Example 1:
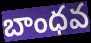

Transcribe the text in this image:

బాంధవ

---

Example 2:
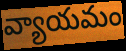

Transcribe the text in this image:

వ్యాయమం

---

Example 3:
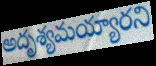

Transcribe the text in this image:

అదృశ్యమయ్యారని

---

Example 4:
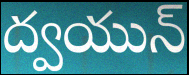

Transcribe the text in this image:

ద్వయున్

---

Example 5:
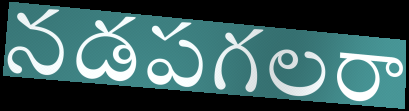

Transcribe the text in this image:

నడపగలరా